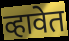
व्हावेत